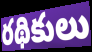
రథికులు